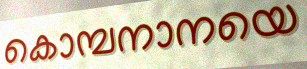
കൊമ്പനാനയെ